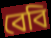
বেবি